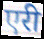
एरी